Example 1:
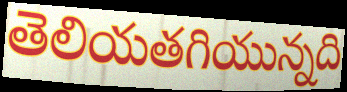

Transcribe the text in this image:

తెలియతగియున్నది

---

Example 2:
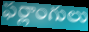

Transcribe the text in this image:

ఫర్లాంగులు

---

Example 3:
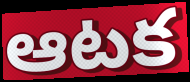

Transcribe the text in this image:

ఆటక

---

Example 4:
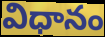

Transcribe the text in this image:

విధానం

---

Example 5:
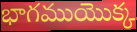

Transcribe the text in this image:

భాగముయొక్క